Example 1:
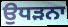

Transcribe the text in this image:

ਉਧੜਨਾ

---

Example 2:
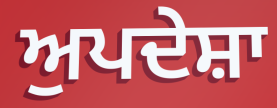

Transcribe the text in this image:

ਅੁਪਦੇਸ਼ਾ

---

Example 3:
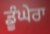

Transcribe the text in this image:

ਡੂੰਘੇਰਾ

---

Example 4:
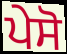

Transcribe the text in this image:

ਪੇਸੋ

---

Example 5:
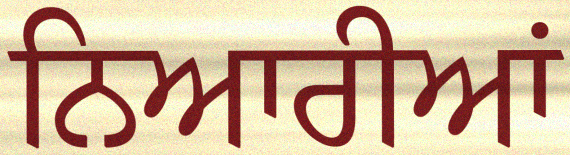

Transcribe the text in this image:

ਨਿਆਰੀਆਂ